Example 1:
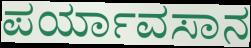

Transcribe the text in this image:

ಪರ್ಯಾವಸಾನ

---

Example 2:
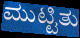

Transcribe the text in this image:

ಮುಟ್ಟಿತು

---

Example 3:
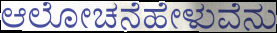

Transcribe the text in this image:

ಆಲೋಚನೆಹೇಳುವೆನು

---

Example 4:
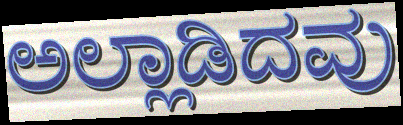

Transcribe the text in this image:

ಅಲ್ಲಾಡಿದವು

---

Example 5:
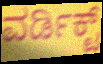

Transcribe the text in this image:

ವರ್ಡಿಕ್ಟ್